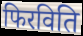
फिरविति